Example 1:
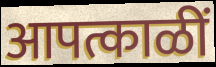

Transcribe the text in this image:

आपत्काळीं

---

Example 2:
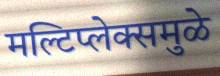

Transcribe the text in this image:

मल्टिप्लेक्समुळे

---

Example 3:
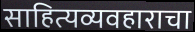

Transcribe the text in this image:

साहित्यव्यवहाराचा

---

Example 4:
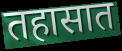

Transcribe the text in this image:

तहासात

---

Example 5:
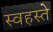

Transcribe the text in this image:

स्वहस्ते